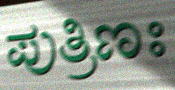
ಪುತ್ರಿಣಃ